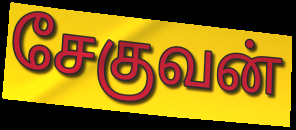
சேகுவன்